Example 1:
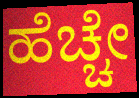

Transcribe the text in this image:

ಹೆಚ್ಚೇ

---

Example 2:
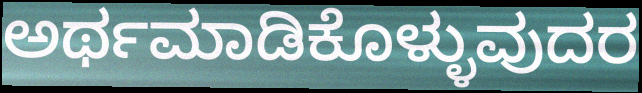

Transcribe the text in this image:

ಅರ್ಥಮಾಡಿಕೊಳ್ಳುವುದರ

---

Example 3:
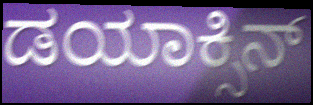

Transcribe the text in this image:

ಡಯಾಕ್ಸಿನ್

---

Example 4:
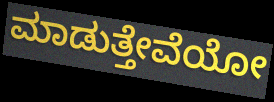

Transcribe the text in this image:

ಮಾಡುತ್ತೇವೆಯೋ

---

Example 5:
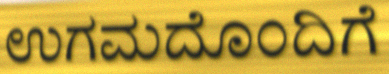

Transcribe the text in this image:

ಉಗಮದೊಂದಿಗೆ